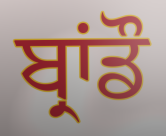
ਬ੍ਰਾਂਡੌ